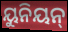
ୟୁନିୟନ୍